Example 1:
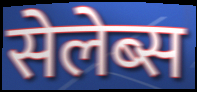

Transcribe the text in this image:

सेलेब्‍स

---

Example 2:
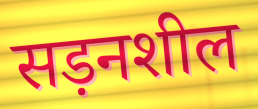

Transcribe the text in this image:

सड़नशील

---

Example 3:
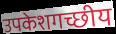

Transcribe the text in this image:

उपकेशगच्छीय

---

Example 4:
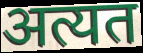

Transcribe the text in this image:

अत्यत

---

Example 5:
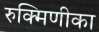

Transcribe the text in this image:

रुक्मिणीका